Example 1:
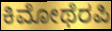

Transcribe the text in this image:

ಕಿಮೋಥೆರಪಿ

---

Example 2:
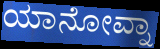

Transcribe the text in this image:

ಯಾನೋವ್ನಾ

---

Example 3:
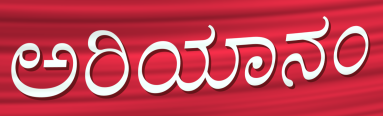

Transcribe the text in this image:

ಅರಿಯಾನಂ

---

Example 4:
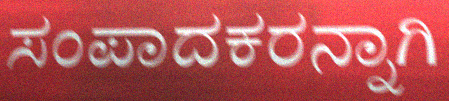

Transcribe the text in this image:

ಸಂಪಾದಕರನ್ನಾಗಿ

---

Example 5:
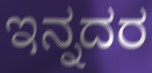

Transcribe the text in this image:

ಇನ್ನದರ